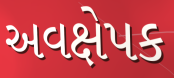
અવક્ષેપક